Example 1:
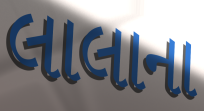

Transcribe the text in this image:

લાલાના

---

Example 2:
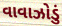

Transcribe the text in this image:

વાવાઝોડું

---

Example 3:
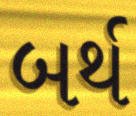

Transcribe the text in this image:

બર્થ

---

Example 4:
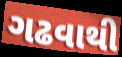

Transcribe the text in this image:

ગઢવાથી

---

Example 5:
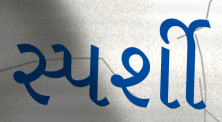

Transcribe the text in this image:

સ્પર્શી